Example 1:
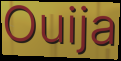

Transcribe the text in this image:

Ouija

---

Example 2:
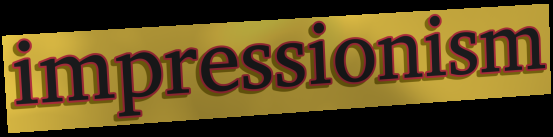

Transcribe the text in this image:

impressionism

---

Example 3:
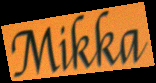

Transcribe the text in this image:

Mikka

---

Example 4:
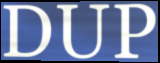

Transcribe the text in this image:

DUP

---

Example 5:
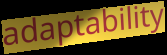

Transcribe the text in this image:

adaptability